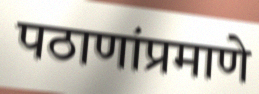
पठाणांप्रमाणे